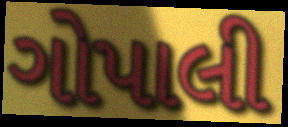
ગોપાલી